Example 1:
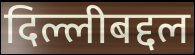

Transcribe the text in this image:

दिल्लीबद्दल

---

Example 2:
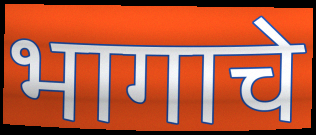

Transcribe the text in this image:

भागाचे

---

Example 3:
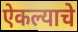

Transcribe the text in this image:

ऐकल्याचे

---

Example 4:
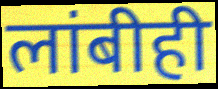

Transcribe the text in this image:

लांबीही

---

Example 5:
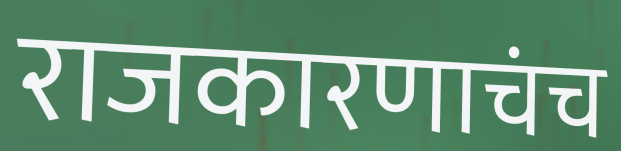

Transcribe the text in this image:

राजकारणाचंच